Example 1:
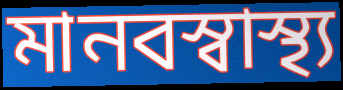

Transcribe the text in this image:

মানবস্বাস্থ্য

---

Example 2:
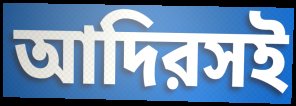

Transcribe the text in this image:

আদিরসই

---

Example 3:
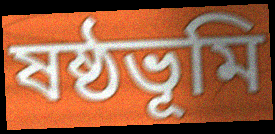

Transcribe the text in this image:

ষষ্ঠভূমি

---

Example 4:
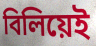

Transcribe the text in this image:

বিলিয়েই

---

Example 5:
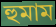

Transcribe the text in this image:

হুমাম